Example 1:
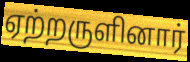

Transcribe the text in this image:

ஏற்றருளினார்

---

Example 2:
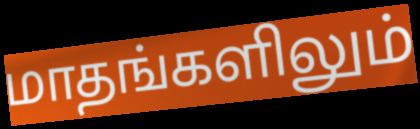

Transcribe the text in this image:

மாதங்களிலும்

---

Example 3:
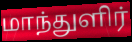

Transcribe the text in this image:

மாந்துளிர்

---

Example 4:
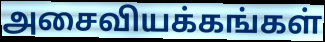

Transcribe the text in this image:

அசைவியக்கங்கள்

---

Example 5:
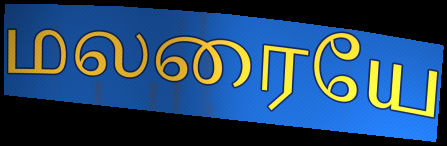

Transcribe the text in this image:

மலரையே